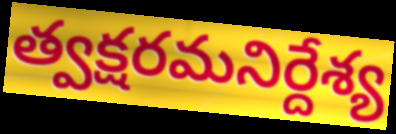
త్వక్షరమనిర్దేశ్య